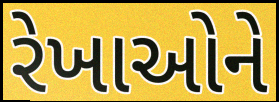
રેખાઓને